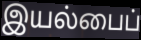
இயல்பைப்